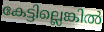
കേട്ടില്ലെങ്കിൽ